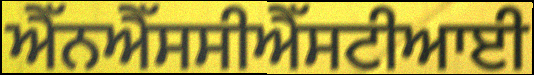
ਐੱਨਐੱਸਸੀਐੱਸਟੀਆਈ